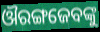
ଔରଙ୍ଗଜେବଙ୍କୁ